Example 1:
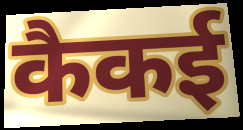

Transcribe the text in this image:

कैकई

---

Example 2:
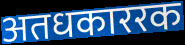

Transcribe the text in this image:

अतधकाररक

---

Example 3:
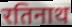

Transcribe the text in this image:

रतिनाथ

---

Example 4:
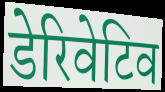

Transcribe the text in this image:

डेरिवेटिव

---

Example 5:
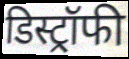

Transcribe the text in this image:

डिस्ट्रॉफी